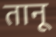
तानू